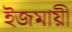
ইজমায়ী